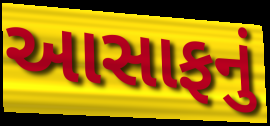
આસાફનું